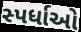
સ્પર્ધાઓ